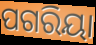
ପଗରିୟା